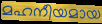
മഹനീയമായ